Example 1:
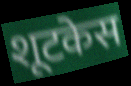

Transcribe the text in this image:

शूटकेस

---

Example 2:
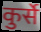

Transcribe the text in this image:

कुर्से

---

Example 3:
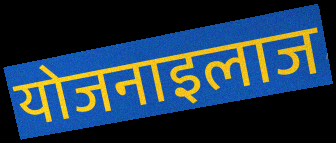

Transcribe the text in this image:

योजनाइलाज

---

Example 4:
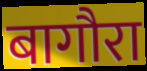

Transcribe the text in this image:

बागौरा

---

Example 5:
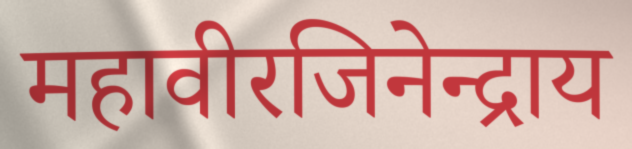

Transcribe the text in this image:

महावीरजिनेन्द्राय